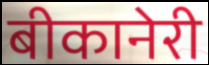
बीकानेरी